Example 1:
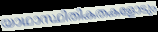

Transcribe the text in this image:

യാഥാസ്ഥിതികതകളോടും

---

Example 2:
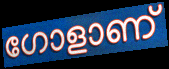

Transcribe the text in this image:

ഗോളാണ്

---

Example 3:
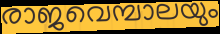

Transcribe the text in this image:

രാജവെമ്പാലയും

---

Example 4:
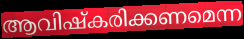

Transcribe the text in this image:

ആവിഷ്കരിക്കണമെന്ന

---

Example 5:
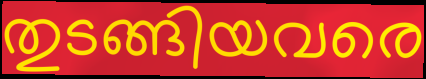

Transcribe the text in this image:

തുടങ്ങിയവരെ